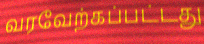
வரவேற்கப்பட்டது